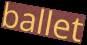
ballet